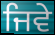
ਜਿਵੇ